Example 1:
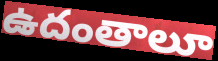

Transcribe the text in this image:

ఉదంతాలూ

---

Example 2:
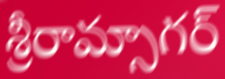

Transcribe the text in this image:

శ్రీరామ్సాగర్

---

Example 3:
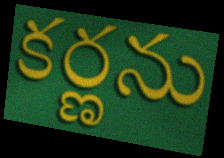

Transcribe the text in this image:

కర్ణను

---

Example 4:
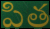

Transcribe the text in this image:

పిత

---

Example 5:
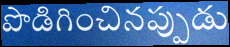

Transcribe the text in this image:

పొడిగించినప్పుడు